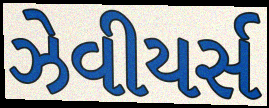
ઝેવીયર્સ